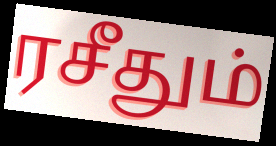
ரசீதும்